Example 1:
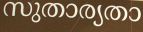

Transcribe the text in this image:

സുതാര്യതാ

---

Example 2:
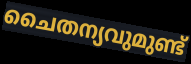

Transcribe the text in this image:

ചൈതന്യവുമുണ്ട്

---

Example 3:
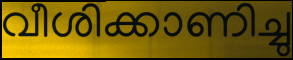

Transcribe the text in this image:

വീശിക്കാണിച്ചു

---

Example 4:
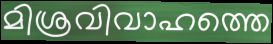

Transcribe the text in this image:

മിശ്രവിവാഹത്തെ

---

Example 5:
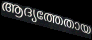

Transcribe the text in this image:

ആദ്യത്തേതായ